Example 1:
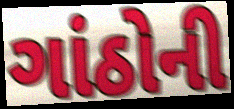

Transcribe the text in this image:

ગાંઠોની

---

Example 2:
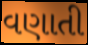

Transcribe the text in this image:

વણાતી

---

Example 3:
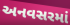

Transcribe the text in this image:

અનવસરમાં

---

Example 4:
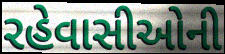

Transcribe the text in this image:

રહેવાસીઓની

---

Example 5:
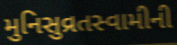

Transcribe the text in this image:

મુનિસુવ્રતસ્વામીની